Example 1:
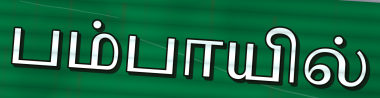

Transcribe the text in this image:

பம்பாயில்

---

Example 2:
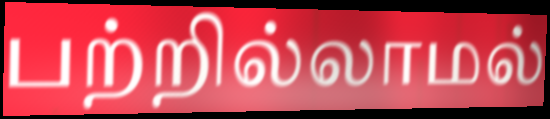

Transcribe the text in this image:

பற்றில்லாமல்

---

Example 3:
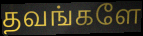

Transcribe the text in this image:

தவங்களே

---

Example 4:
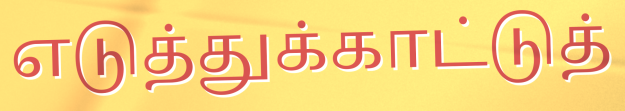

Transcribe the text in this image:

எடுத்துக்காட்டுத்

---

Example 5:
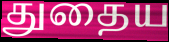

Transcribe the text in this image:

துதைய